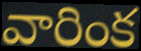
వారింక